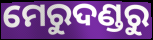
ମେରୁଦଣ୍ଡରୁ